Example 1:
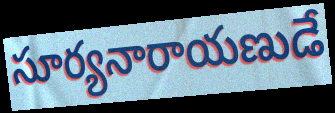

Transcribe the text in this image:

సూర్యనారాయణుడే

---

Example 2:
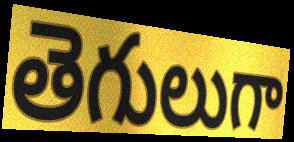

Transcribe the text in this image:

తెగులుగా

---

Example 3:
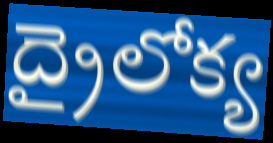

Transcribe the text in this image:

ద్రైలోక్య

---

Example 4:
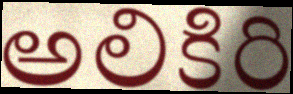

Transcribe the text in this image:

అలికిరి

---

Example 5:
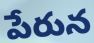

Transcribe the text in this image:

పేరున